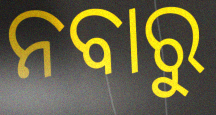
ନବାରୁ